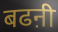
बढऩी